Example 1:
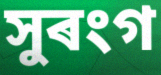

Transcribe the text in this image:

সুৰংগ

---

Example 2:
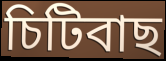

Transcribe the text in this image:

চিটিবাছ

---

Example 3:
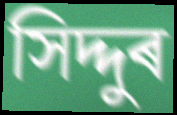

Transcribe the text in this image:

সিদ্দুৰ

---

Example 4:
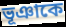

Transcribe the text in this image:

ভূঞাকে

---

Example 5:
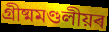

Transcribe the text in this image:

গ্ৰীষ্মমণ্ডলীয়ৰ